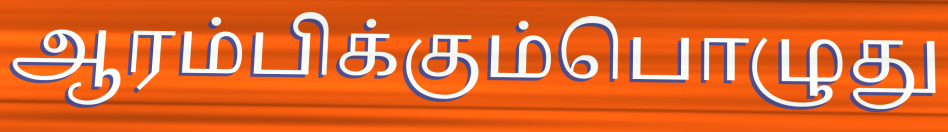
ஆரம்பிக்கும்பொழுது